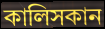
কালিসকান